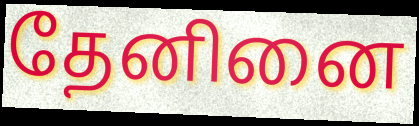
தேனினை